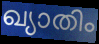
ഖ്യാതിം